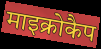
माइक्रोकैप